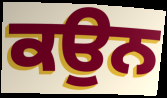
ਕਉਨ